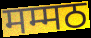
मम्मठ